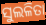
ସୁଲଳିତା